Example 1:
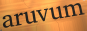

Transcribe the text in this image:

aruvum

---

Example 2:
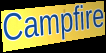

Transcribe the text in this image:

Campfire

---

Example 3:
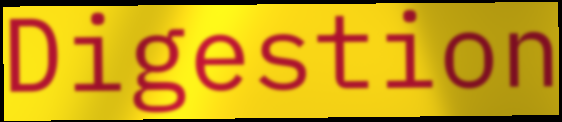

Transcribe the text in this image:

Digestion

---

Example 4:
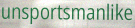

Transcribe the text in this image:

unsportsmanlike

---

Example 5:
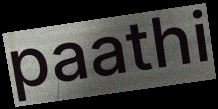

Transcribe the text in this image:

paathi